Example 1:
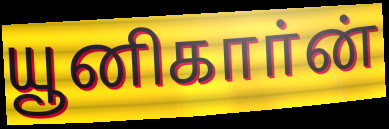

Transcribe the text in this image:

யூனிகார்ன்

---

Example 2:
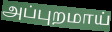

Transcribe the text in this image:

அப்புறமாய்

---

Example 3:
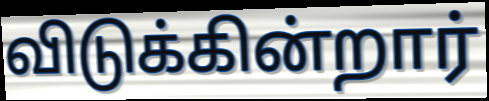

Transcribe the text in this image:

விடுக்கின்றார்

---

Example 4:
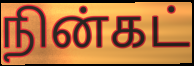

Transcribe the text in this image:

நின்கட்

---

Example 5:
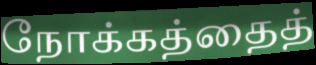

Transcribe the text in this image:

நோக்கத்தைத்